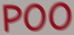
POO